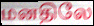
மனதிலே